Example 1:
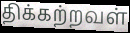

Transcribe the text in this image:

திக்கற்றவள்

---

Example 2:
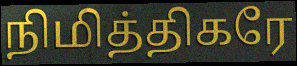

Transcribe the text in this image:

நிமித்திகரே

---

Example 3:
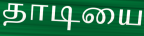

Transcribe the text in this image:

தாடியை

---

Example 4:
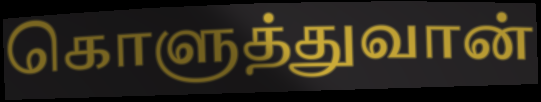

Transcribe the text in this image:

கொளுத்துவான்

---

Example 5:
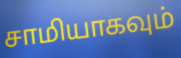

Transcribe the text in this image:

சாமியாகவும்